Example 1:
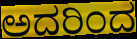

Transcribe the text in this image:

ಅದರಿಂದ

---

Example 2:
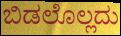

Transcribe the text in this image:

ಬಿಡಲೊಲ್ಲದು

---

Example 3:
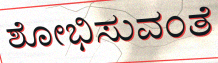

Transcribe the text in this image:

ಶೋಭಿಸುವಂತೆ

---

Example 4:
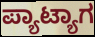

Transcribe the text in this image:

ಪ್ಯಾಟ್ಯಾಗ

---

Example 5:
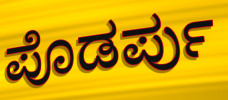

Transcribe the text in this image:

ಪೊಡರ್ಪು